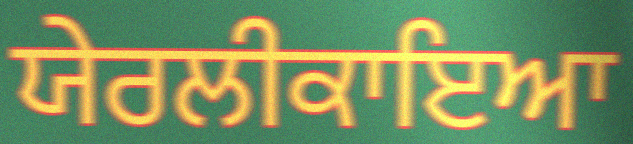
ਯੇਰਲੀਕਾਇਆ